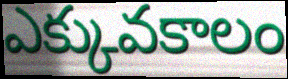
ఎక్కువకాలం